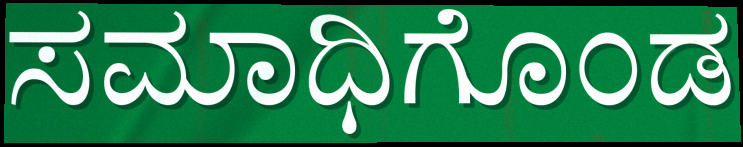
ಸಮಾಧಿಗೊಂಡ